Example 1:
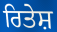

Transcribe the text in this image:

ਰਿਤੇਸ਼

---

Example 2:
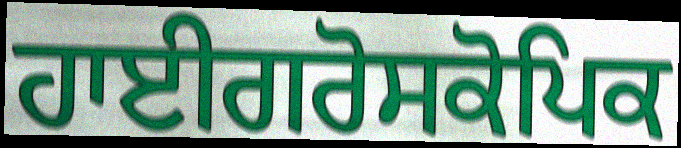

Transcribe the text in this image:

ਹਾਈਗਰੋਸਕੋਪਿਕ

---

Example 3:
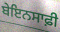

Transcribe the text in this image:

ਬੇਇਨਸਾਫ਼ੀ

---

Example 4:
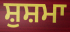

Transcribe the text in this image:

ਸ਼ੁਸ਼ਮਾ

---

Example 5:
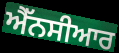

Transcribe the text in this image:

ਐੱਨਸੀਆਰ